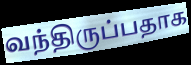
வந்திருப்பதாக